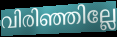
വിരിഞ്ഞില്ലേ